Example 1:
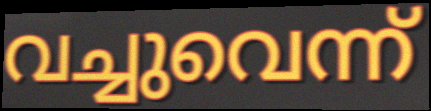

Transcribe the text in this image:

വച്ചുവെന്ന്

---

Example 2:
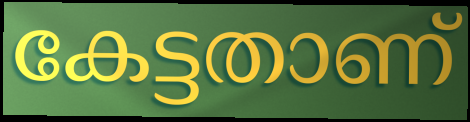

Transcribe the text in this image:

കേട്ടതാണ്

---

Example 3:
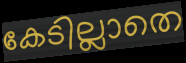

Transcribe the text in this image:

കേടില്ലാതെ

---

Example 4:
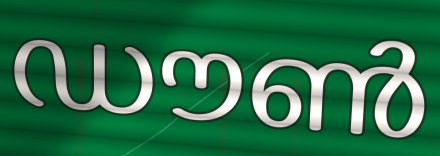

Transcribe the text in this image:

ഡൗൺ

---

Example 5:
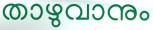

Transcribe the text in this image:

താഴുവാനും